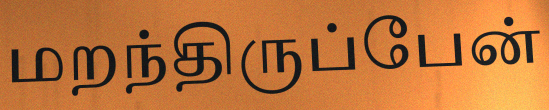
மறந்திருப்பேன்